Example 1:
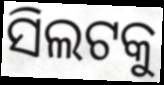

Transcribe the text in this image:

ସିଲଟକୁ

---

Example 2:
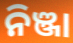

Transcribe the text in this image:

ନିଞ୍ଜା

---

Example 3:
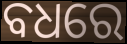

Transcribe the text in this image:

ବଧରେ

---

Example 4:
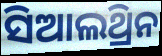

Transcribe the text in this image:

ସିଆଲଥ୍ରିନ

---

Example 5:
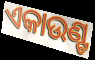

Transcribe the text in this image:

ଏକାଉଣ୍ଟ